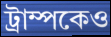
ট্রাম্পকেও